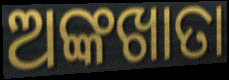
ଅଙ୍କଖାତା